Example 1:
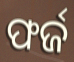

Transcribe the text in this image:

ଫର୍ଜ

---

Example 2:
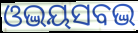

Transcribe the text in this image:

ଓଦ୍ଭୟସବଦ୍ଭ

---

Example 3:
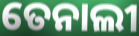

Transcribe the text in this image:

ତେନାଲୀ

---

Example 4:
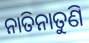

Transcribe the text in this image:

ନାତିନାତୁଣି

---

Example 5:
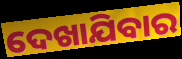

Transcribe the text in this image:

ଦେଖାଯିବାର